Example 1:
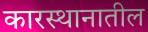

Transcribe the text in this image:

कारस्थानातील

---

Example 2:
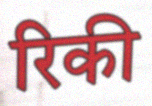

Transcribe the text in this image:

रिकी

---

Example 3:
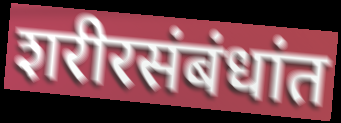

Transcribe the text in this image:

शरीरसंबंधांत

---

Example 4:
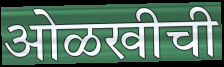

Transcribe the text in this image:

ओळखीची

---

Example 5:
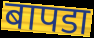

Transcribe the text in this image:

बापडा